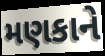
મણકાને